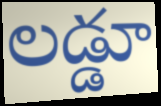
లడ్డూ